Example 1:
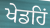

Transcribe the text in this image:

ਖੇਡਹਿਂ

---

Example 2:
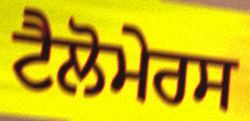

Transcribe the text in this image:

ਟੈਲੋਮੇਰਸ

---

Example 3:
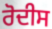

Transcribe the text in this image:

ਰੋਦੀਸ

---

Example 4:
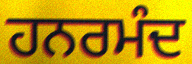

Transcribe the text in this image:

ਹਨਰਮੰਦ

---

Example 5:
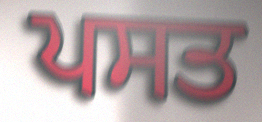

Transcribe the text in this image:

ਪਸਤ